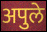
अपुले